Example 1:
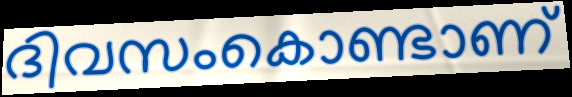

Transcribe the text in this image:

ദിവസംകൊണ്ടാണ്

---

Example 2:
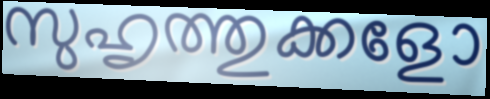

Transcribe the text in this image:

സുഹൃത്തുക്കളോ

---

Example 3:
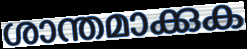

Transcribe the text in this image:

ശാന്തമാക്കുക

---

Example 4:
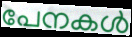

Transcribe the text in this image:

പേനകൾ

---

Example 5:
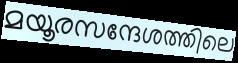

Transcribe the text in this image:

മയൂരസന്ദേശത്തിലെ